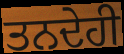
ਤਨਦੇਹੀ